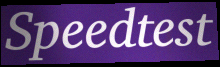
Speedtest